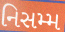
નિસમ્મ